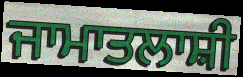
ਜਾਮਾਤਲਾਸ਼ੀ